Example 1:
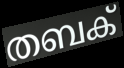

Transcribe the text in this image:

തബക്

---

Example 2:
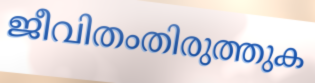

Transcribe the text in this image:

ജീവിതംതിരുത്തുക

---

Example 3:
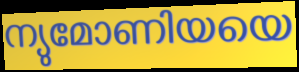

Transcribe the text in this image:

ന്യുമോണിയയെ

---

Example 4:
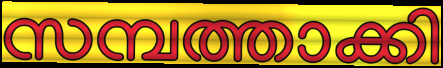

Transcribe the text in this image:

സമ്പത്താക്കി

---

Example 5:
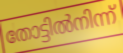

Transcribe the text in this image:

തോട്ടിൽനിന്ന്